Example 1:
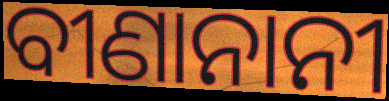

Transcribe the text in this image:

ବୀଣାନାନୀ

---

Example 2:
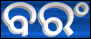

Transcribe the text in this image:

ବରଂ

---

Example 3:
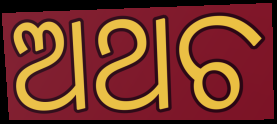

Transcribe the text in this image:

ଅଥଚ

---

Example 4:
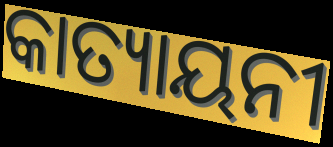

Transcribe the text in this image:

କାତ୍ୟାୟନୀ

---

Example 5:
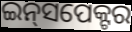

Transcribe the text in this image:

ଇନ୍‍ସପେକ୍ଟର